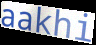
aakhi